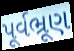
પૂર્વભ્રૂણ